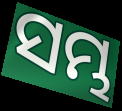
ସମ୍ଭ